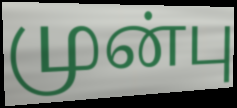
முன்பு